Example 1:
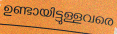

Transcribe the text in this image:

ഉണ്ടായിട്ടുള്ളവരെ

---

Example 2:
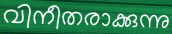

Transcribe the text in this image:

വിനീതരാക്കുന്നു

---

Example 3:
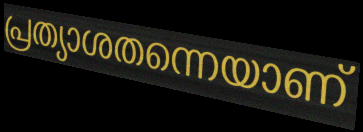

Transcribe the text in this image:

പ്രത്യാശതന്നെയാണ്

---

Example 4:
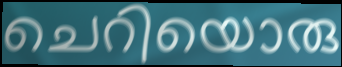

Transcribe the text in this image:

ചെറിയൊരു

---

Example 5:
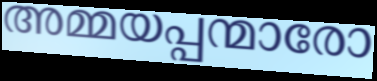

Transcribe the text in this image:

അമ്മയപ്പന്മാരോ